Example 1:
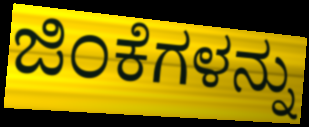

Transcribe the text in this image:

ಜಿಂಕೆಗಳನ್ನು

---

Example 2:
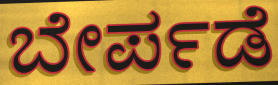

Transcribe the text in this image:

ಬೇರ್ಪಡೆ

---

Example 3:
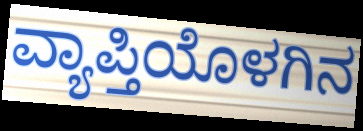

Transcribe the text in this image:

ವ್ಯಾಪ್ತಿಯೊಳಗಿನ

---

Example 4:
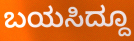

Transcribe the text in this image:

ಬಯಸಿದ್ದೂ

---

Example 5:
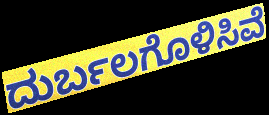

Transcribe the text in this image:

ದುರ್ಬಲಗೊಳಿಸಿವೆ